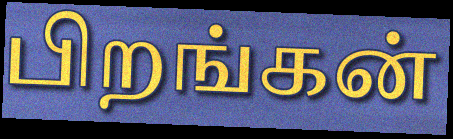
பிறங்கன்